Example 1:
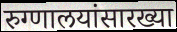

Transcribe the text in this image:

रुग्णालयांसारख्या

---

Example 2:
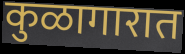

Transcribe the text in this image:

कुळागारात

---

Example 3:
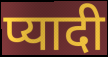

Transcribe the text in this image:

प्यादी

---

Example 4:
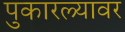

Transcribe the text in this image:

पुकारल्यावर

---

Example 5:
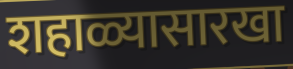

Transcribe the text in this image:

शहाळ्यासारखा